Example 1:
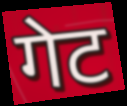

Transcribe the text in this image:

गेट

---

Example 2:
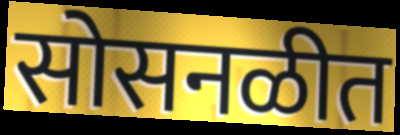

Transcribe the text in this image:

सोसनळीत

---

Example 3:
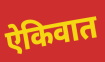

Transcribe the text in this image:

ऐकिवात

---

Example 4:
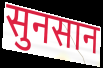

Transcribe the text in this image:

सुनसान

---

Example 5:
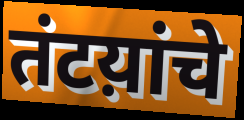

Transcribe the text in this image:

तंटय़ांचे